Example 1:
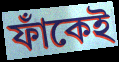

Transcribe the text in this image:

ফাঁকেই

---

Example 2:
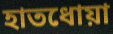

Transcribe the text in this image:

হাতধোয়া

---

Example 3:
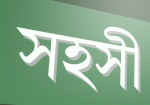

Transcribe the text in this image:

সহসী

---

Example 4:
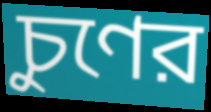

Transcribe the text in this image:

চুণের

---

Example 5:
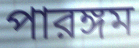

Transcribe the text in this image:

পারঙ্গম